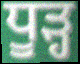
ਧੂੜ੍ਹ